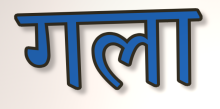
गला